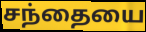
சந்தையை